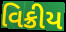
વિક્રીય